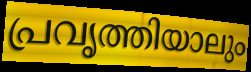
പ്രവൃത്തിയാലും